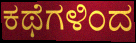
ಕಥೆಗಳಿಂದ